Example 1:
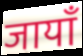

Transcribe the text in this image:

जायाँ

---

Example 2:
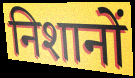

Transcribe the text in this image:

निशानों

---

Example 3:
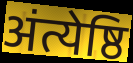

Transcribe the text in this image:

अंत्येष्ठि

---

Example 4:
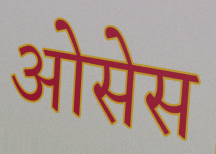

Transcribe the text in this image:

ओसेस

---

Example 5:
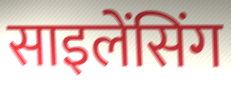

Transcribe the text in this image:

साइलेंसिंग